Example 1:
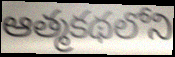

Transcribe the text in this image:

ఆత్మకథలోని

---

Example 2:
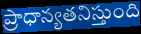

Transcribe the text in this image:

ప్రాధాన్యతనిస్తుంది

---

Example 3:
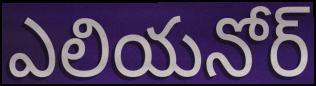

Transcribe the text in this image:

ఎలియనోర్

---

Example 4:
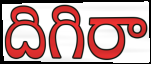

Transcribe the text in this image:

దిగిరా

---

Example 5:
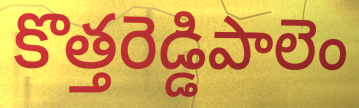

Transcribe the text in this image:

కొత్తరెడ్డిపాలెం